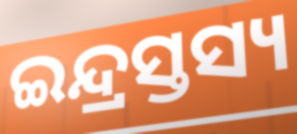
ଇନ୍ଦ୍ରସ୍ତସ୍ୟ